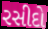
રસીદો